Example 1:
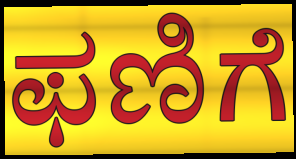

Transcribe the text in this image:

ಫಣಿಗೆ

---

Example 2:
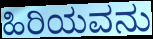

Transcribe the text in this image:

ಹಿರಿಯವನು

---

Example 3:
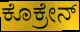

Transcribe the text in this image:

ಕೊಕ್ರೇನ್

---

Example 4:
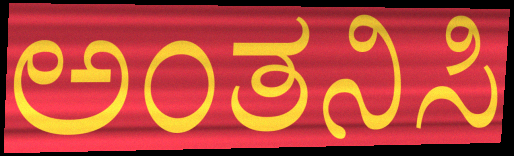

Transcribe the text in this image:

ಅಂತನಿಸಿ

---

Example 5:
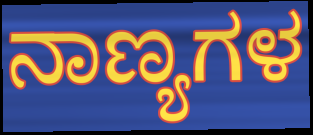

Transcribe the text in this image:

ನಾಣ್ಯಗಳ